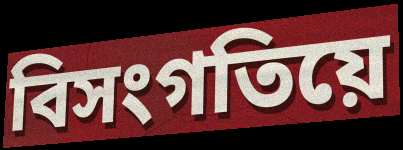
বিসংগতিয়ে